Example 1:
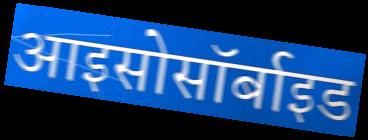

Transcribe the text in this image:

आइसोसॉर्बाइड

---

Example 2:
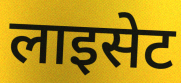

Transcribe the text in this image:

लाइसेट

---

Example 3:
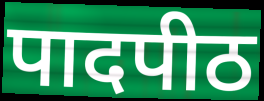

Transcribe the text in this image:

पादपीठ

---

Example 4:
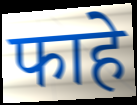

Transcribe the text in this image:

फाहे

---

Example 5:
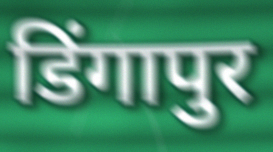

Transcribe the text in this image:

डिंगापुर